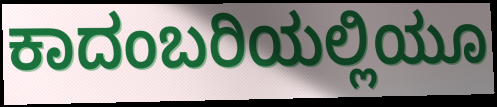
ಕಾದಂಬರಿಯಲ್ಲಿಯೂ